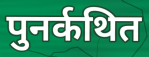
पुनर्कथित